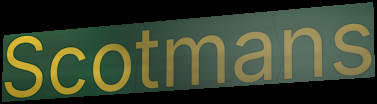
Scotmans